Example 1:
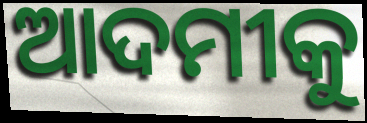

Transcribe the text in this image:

ଆଦମୀକୁ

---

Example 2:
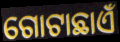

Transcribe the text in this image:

ଗୋଟାଛାଏଁ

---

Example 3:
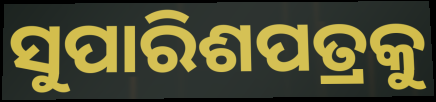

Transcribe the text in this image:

ସୁପାରିଶପତ୍ରକୁ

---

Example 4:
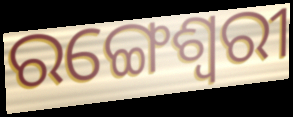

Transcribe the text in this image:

ରଙ୍ଗେଶ୍ୱରୀ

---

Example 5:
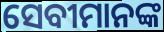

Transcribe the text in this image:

ସେବୀମାନଙ୍କ